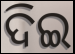
ଦିଇ